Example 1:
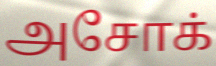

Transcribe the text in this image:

அசோக்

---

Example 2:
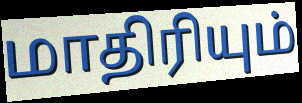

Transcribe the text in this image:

மாதிரியும்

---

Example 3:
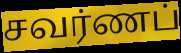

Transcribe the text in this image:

சவர்ணப்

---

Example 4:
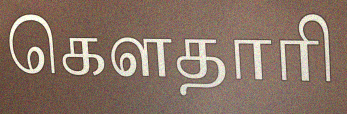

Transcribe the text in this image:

கௌதாரி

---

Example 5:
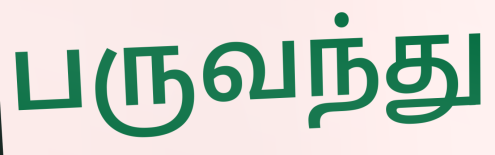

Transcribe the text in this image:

பருவந்து